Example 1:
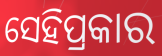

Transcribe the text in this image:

ସେହିପ୍ରକାର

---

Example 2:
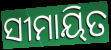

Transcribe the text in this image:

ସୀମାୟିତ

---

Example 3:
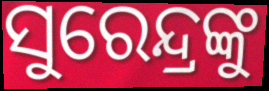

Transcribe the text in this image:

ସୁରେନ୍ଦ୍ରଙ୍କୁ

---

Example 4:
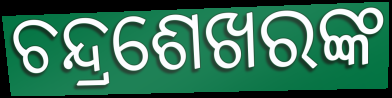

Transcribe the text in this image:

ଚନ୍ଦ୍ରଶେଖରଙ୍କ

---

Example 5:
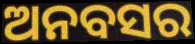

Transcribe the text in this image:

ଅନବସର